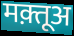
मक़्तूअ